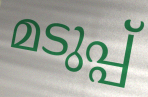
മടുപ്പ്